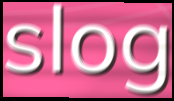
slog